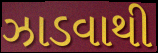
ઝાડવાથી